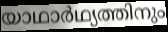
യാഥാർഥ്യത്തിനും